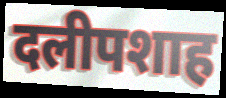
दलीपशाह